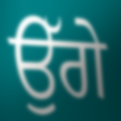
ਉੱਗੇ